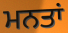
ਮਨਤਾਂ